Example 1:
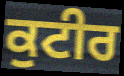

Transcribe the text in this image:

ਕੁਟੀਰ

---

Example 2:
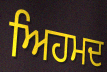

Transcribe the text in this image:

ਅਿਹਮਦ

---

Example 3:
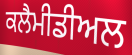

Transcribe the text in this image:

ਕਲੈਮੀਡੀਅਲ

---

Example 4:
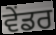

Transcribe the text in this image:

ਵੇਂਡਰ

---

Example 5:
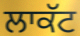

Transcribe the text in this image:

ਲਾਕੱਟ